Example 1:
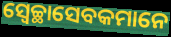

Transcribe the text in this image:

ସ୍ୱେଚ୍ଛାସେବକମାନେ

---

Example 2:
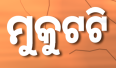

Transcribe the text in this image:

ମୁକୁଟଟି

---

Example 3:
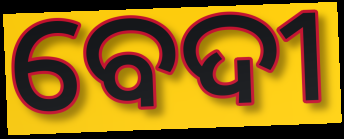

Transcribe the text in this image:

ବେଦୀ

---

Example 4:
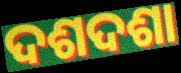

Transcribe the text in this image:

ଦଶଦଶା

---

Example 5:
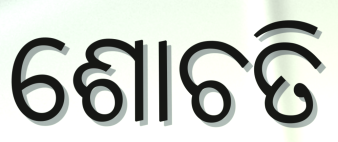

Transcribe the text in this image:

ଶୋଚତି